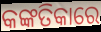
କଙ୍କତିକାରେ